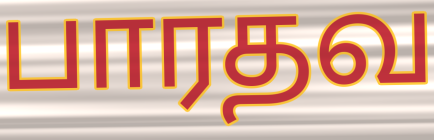
பாரதவ